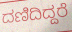
ದಣಿದಿದ್ದರೆ